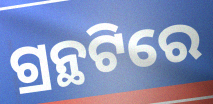
ଗ୍ରନ୍ଥଟିରେ